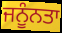
ਜਨੂੰਨਤਾ